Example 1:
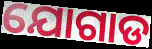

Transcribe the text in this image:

ଯୋଗାଡ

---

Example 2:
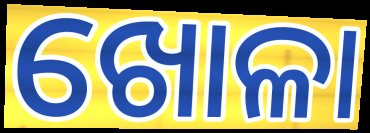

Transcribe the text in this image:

ଖୋଳା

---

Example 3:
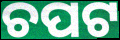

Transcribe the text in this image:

ଚପଟ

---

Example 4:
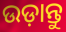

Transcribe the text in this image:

ଉଡ଼ାନ୍ତୁ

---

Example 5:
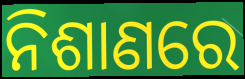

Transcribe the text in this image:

ନିଶାଣରେ